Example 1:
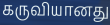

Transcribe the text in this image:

கருவியானது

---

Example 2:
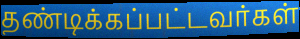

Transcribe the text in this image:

தண்டிக்கப்பட்டவர்கள்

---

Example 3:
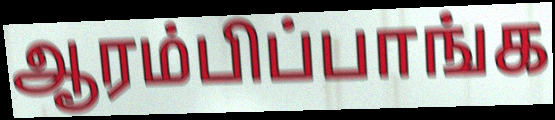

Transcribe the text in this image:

ஆரம்பிப்பாங்க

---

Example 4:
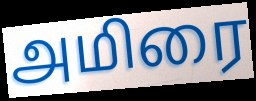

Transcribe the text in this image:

அமிரை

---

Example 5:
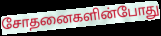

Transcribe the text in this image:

சோதனைகளின்போது